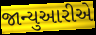
જાન્યુઆરીએ